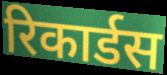
रिकार्डस